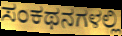
ಸಂಕಥನಗಳಲ್ಲಿ